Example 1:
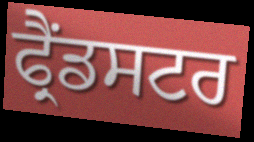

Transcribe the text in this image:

ਫ੍ਰੈਂਡਸਟਰ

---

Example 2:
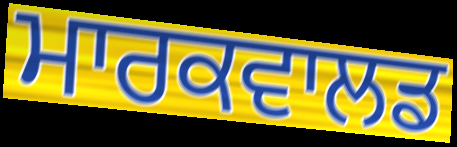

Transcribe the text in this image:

ਮਾਰਕਵਾਲਡ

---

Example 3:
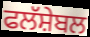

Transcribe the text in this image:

ਫਲੱਸ਼ੇਬਲ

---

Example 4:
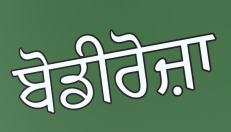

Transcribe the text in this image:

ਬੋਡੀਰੋਜ਼ਾ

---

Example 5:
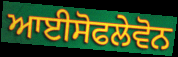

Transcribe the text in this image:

ਆਈਸੋਫਲੇਵੋਨ